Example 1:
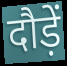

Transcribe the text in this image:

दौड़ें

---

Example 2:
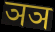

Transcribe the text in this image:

ञञ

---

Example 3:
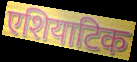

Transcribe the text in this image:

एशियाटिक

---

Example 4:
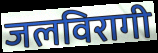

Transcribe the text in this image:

जलविरागी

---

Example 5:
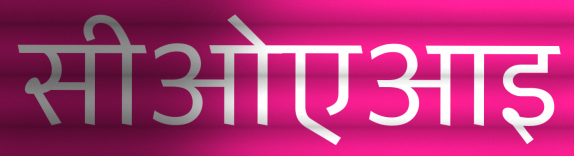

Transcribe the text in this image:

सीओएआइ